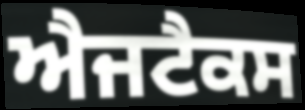
ਐਜਟੈਕਸ